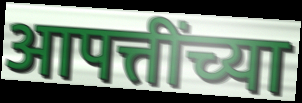
आपत्तींच्या